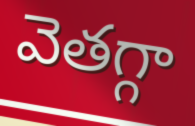
వెతగ్గా